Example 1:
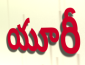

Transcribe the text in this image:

యూరీ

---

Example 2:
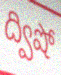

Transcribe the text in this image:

ద్విషో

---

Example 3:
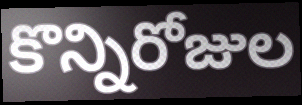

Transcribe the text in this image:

కొన్నిరోజుల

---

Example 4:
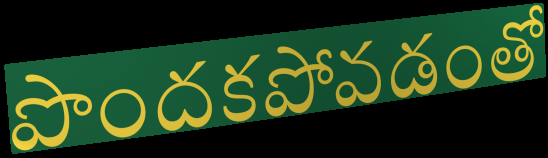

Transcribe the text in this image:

పొందకపోవడంతో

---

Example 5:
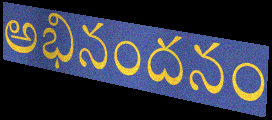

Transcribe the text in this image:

అభినందనం